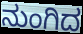
ನುಂಗಿದ